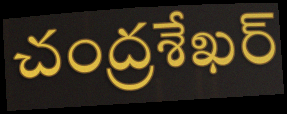
చంద్రశేఖర్